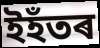
ইহঁতৰ